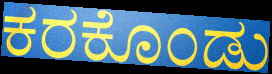
ಕರಕೊಂಡು